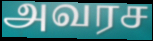
அவரச